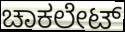
ಚಾಕಲೇಟ್